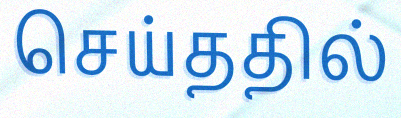
செய்ததில்